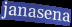
janasena